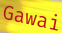
Gawai